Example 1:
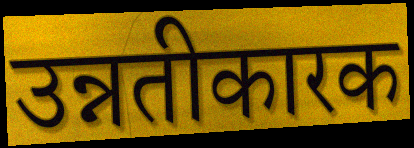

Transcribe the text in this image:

उन्नतीकारक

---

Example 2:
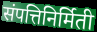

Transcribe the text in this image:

संपत्तिनिर्मिती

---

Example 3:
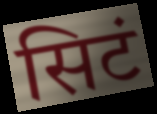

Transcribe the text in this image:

सिटं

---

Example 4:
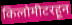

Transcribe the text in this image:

किलोमीटरहून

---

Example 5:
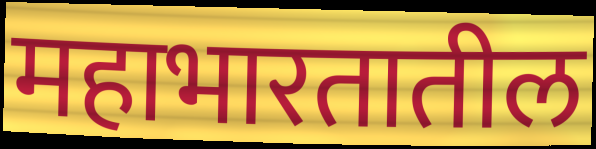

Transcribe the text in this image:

महाभारतातील